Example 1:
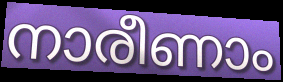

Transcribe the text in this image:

നാരീണാം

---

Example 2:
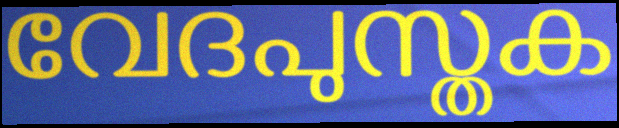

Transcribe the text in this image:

വേദപുസ്തക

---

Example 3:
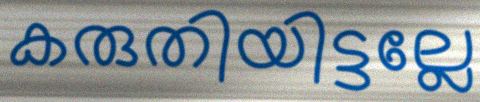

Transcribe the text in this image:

കരുതിയിട്ടല്ലേ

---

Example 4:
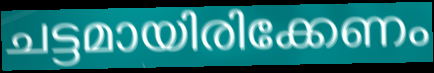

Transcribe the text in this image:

ചട്ടമായിരിക്കേണം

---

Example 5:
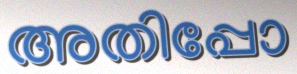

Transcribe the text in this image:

അതിപ്പോ